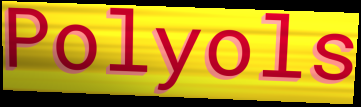
Polyols